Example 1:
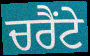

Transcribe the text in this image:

ਚਰੈਂਟੇ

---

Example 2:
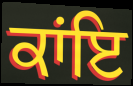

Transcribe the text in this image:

ਕਾਂਇ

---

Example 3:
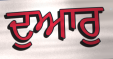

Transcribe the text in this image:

ਦੁਆਰੁ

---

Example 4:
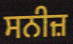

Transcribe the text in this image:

ਸਨੀਜ਼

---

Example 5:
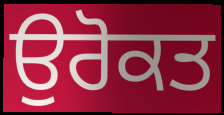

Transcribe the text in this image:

ਉਰੋਕਤ